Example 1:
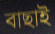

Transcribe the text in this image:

বাছাই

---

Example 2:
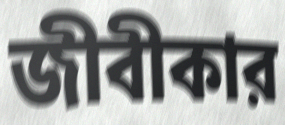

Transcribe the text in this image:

জীবীকার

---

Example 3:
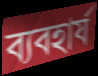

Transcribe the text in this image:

ব্যবহার্য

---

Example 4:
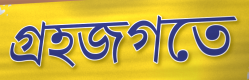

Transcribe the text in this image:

গ্রহজগতে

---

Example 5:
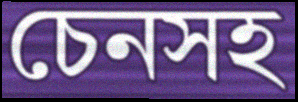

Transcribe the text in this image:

চেনসহ